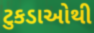
ટુકડાઓથી